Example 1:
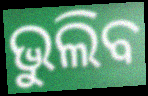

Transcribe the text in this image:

ଭୁଲିବ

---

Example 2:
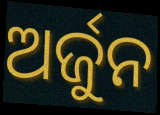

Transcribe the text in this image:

ଅର୍ଜୁନ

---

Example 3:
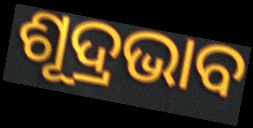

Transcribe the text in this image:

ଶୂଦ୍ରଭାବ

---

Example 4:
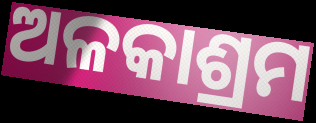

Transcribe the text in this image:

ଅଳକାଶ୍ରମ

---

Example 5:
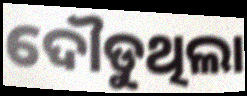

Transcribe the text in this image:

ଦୌଡୁଥିଲା